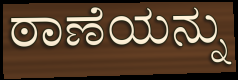
ಠಾಣೆಯನ್ನು